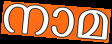
നാമ